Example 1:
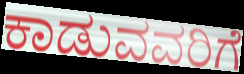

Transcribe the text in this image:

ಕಾಡುವವರಿಗೆ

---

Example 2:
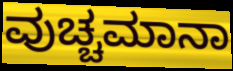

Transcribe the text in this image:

ವುಚ್ಚಮಾನಾ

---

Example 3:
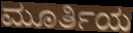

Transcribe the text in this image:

ಮೂರ್ತಿಯ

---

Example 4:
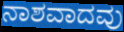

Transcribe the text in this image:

ನಾಶವಾದವು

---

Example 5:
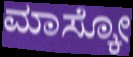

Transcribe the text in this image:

ಮಾಸ್ಕೋ